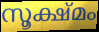
സൂക്ഷ്‌മം